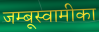
जम्बूस्वामीका